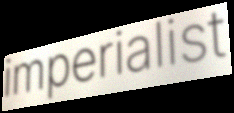
imperialist